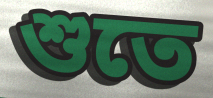
শুতে